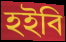
হইবি